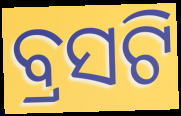
ବ୍ରସଟି